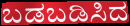
ಬಡಬಡಿಸಿದ